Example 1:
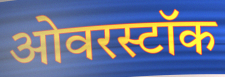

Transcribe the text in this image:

ओवरस्टॉक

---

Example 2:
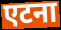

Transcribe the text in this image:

एटना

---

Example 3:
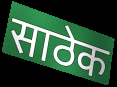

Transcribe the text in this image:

साठेक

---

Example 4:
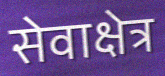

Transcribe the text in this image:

सेवाक्षेत्र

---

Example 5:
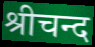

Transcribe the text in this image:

श्रीचन्द